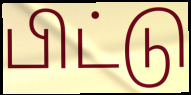
பிட்டு